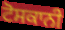
ਟੋਸਕਾਨੀ